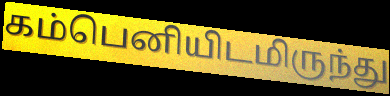
கம்பெனியிடமிருந்து